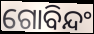
ଗୋବିନ୍ଦଂ